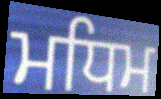
ਮਧਿਮ